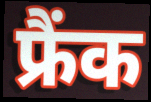
फ्रैंक